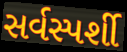
સર્વસ્પર્શી